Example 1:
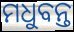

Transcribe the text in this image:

ମଧୁବନ୍ତ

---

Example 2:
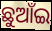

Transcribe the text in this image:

ଛୁଆଁଇ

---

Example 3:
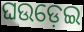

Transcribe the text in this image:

ଘଉଡ଼େଇ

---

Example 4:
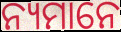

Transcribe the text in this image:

ନ୍ୟମାନେ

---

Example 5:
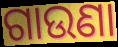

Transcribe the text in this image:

ଗାଉଣା